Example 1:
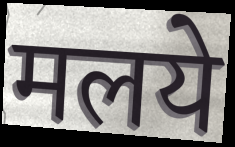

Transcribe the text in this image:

मलये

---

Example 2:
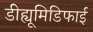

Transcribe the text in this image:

डीह्यूमिडिफाई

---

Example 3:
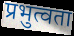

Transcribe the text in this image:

प्रभुत्वता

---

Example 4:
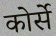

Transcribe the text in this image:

कोर्से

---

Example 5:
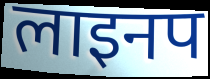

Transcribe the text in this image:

लाइनप